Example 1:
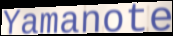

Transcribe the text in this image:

Yamanote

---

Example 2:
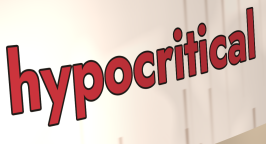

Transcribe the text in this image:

hypocritical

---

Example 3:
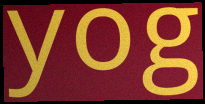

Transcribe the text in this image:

yog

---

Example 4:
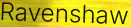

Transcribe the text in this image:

Ravenshaw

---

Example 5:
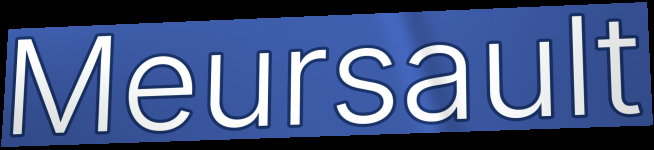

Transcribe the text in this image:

Meursault